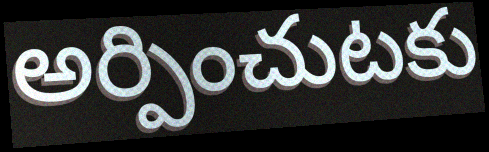
అర్పించుటకు